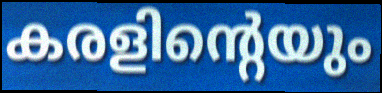
കരളിന്റെയും